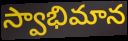
స్వాభిమాన